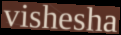
vishesha